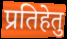
प्रतिहेतु